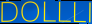
DOLLLI